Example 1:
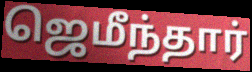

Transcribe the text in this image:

ஜெமீந்தார்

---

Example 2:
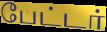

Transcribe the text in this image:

பேட்டர்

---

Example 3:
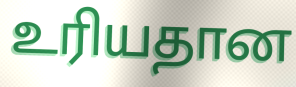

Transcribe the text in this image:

உரியதான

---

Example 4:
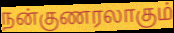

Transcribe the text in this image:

நன்குணரலாகும்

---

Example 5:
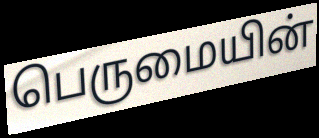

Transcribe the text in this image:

பெருமையின்